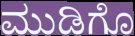
ಮುಡಿಗೊ